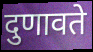
दुणावते